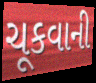
ચૂકવાની